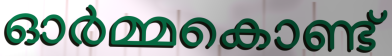
ഓർമ്മകൊണ്ട്